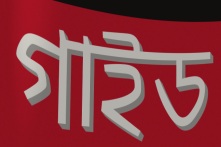
গাইড